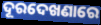
ଦୂରଦେଖଣାରେ